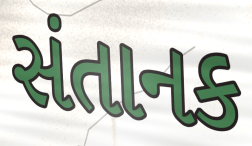
સંતાનક